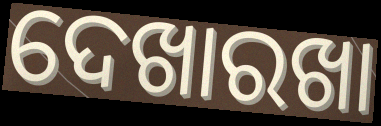
ଦେଖାରଖା